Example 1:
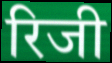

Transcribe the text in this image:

रिजी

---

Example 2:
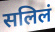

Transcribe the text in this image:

सलिलं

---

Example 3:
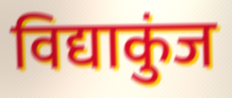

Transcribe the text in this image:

विद्याकुंज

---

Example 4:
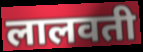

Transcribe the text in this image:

लालवती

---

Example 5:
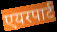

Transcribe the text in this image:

एयरपार्ट